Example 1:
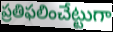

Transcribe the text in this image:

ప్రతిఫలించేట్టుగా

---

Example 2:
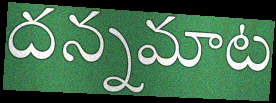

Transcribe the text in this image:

దన్నమాట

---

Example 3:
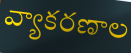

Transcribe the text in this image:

వ్యాకరణాల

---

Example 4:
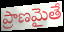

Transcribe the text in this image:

ప్రాణమైతే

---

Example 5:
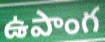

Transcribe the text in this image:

ఉపాంగ